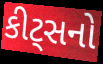
કીટ્સનો